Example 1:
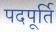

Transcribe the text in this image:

पदपूर्ति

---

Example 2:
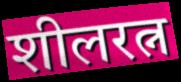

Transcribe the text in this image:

शीलरत्न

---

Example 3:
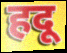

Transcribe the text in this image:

हदू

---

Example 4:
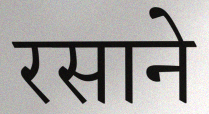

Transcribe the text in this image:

रसाने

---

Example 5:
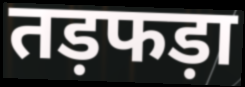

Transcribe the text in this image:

तड़फड़ा